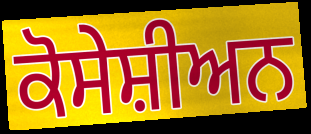
ਕੋਸੇਸ਼ੀਅਨ